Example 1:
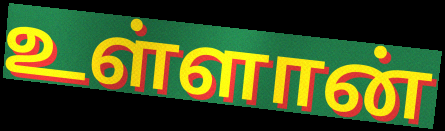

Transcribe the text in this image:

உள்ளான்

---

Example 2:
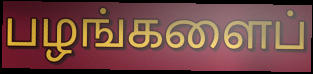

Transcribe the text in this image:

பழங்களைப்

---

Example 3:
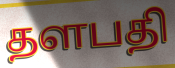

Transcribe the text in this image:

தளபதி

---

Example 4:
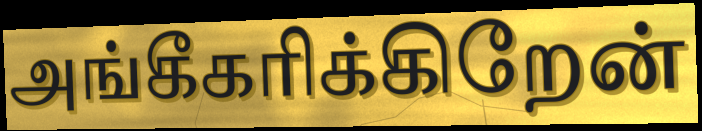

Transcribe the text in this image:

அங்கீகரிக்கிறேன்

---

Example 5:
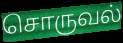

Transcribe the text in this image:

சொருவல்